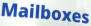
Mailboxes